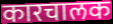
कारचालक